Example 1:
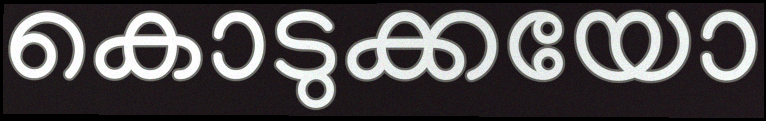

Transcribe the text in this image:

കൊടുക്കയോ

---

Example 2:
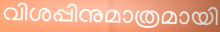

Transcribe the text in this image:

വിശപ്പിനുമാത്രമായി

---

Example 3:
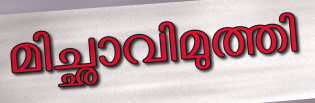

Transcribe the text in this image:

മിച്ഛാവിമുത്തി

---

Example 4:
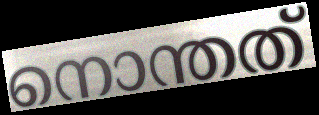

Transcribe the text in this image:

നൊന്തത്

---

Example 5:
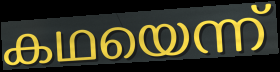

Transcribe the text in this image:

കഥയെന്ന്